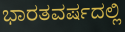
ಭಾರತವರ್ಷದಲ್ಲಿ